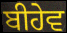
ਬੀਹੇਵ